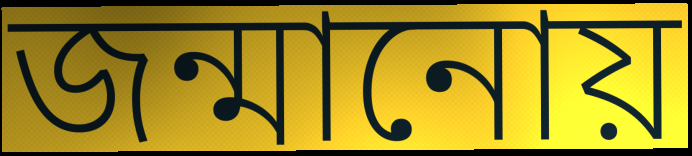
জন্মানোয়